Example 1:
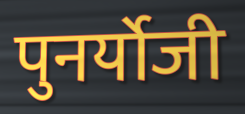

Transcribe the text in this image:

पुनर्योजी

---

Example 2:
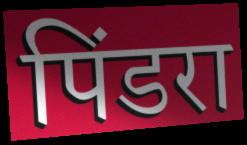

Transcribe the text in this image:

पिंडरा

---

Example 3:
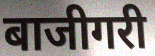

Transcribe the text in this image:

बाजीगरी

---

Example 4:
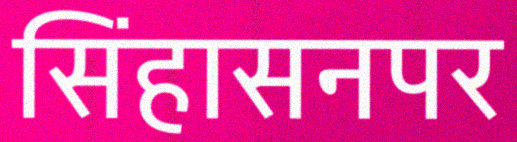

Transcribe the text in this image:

सिंहासनपर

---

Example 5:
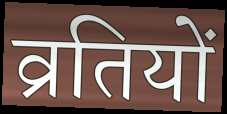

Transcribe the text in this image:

व्रतियों